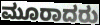
ಮೂರಾದರು